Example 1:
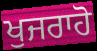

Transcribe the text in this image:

ਖੁਜਰਾਹੋ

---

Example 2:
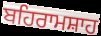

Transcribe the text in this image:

ਬਹਿਰਾਮਸ਼ਾਹ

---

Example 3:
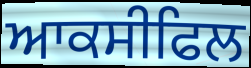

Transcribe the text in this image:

ਆਕਸੀਫਿਲ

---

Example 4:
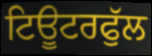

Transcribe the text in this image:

ਟਿਊਟਰਫੁੱਲ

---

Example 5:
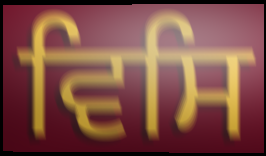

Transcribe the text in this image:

ਵਿਸਿ